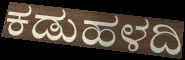
ಕಡುಹಳದಿ